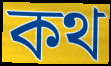
কথ